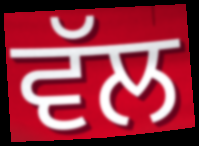
ਵੱਲ